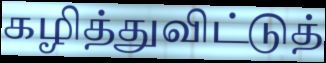
கழித்துவிட்டுத்